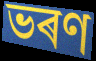
ভৰণ